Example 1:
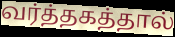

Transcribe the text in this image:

வர்த்தகத்தால்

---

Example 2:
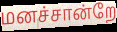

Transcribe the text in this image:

மனச்சான்றே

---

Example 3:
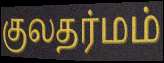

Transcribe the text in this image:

குலதர்மம்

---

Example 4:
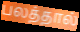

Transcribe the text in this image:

பலத்தால்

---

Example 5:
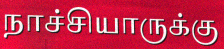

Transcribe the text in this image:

நாச்சியாருக்கு